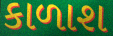
કાળાશ